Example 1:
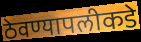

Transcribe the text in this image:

ठेवण्यापलीकडे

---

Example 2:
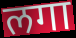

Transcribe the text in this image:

लगा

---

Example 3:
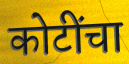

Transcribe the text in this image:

कोटींचा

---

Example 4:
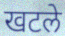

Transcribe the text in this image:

खटले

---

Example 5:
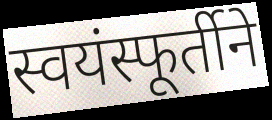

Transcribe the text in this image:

स्वयंस्फूर्तीने